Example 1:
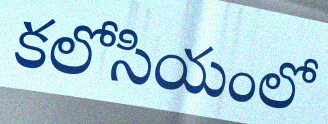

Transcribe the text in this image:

కలోసియంలో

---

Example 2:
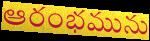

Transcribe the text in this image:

ఆరంభమును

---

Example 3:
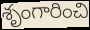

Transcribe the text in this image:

శృంగారించి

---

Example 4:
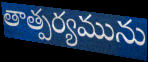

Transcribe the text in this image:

తాత్పర్యమును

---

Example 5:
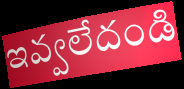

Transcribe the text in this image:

ఇవ్వలేదండి